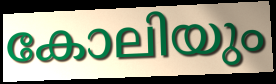
കോലിയും